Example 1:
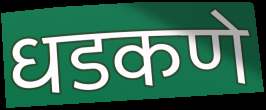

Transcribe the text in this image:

धडकणे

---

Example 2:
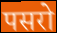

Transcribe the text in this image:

पसरो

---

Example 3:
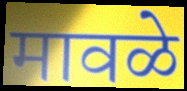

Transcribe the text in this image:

मावळे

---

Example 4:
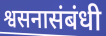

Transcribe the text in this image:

श्वसनासंबंधी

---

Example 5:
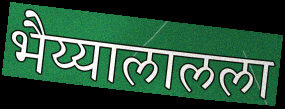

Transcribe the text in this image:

भैय्यालालला